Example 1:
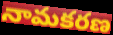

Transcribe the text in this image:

నామకరణ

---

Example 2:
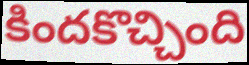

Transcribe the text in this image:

కిందకొచ్చింది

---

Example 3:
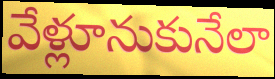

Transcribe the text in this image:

వేళ్లూనుకునేలా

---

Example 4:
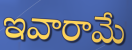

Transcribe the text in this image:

ఇవారామే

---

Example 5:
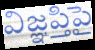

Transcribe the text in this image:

విజ్ఞప్తిపై